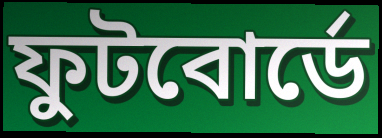
ফুটবোর্ডে